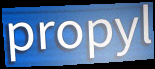
propyl